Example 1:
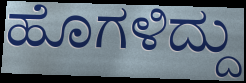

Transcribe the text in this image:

ಹೊಗಳಿದ್ದು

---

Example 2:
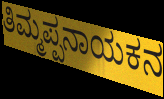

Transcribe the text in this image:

ತಿಮ್ಮಪ್ಪನಾಯಕನ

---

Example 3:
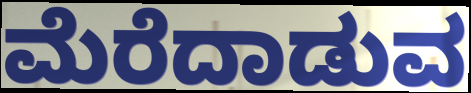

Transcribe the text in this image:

ಮೆರೆದಾಡುವ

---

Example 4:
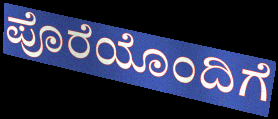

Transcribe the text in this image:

ಪೊರೆಯೊಂದಿಗೆ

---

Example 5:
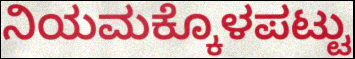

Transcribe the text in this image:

ನಿಯಮಕ್ಕೊಳಪಟ್ಟು